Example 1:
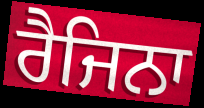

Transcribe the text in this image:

ਰੈਜਿਨਾ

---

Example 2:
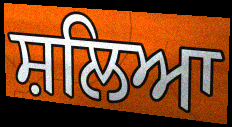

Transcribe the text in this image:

ਸ਼ਲਿਆ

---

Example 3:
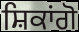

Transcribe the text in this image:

ਸ਼ਿਕਾਂਗੋ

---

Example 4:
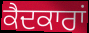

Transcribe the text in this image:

ਕੈਦਕਾਰਾਂ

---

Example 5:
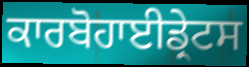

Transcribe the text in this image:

ਕਾਰਬੋਹਾਈਡ੍ਰੇਟਸ